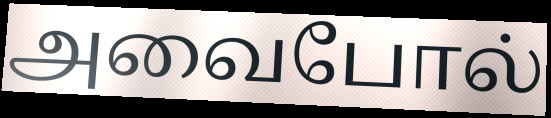
அவைபோல்